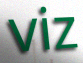
viz